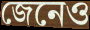
জেনেও